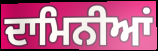
ਦਾਮਿਨੀਆਂ